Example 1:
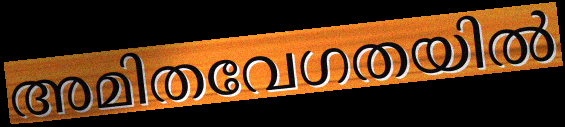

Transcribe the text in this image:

അമിതവേഗതയിൽ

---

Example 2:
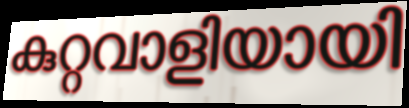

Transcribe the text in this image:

കുറ്റവാളിയായി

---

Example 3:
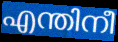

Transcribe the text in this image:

എന്തിനീ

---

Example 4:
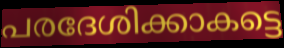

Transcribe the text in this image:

പരദേശിക്കാകട്ടെ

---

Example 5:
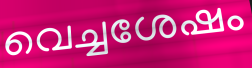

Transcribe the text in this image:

വെച്ചശേഷം